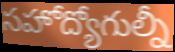
సహోద్యోగుల్నీ